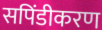
सपिंडीकरण